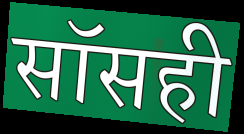
सॉसही